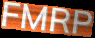
FMRP